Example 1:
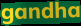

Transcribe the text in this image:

gandha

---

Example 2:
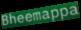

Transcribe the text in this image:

Bheemappa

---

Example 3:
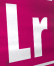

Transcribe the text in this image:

Lr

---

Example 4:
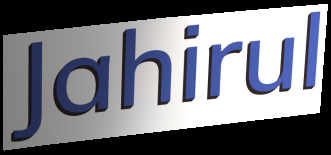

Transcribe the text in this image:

Jahirul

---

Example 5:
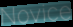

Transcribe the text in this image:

Novice